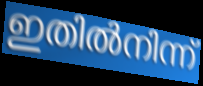
ഇതിൽനിന്ന്